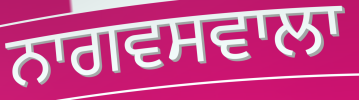
ਨਾਗਵਸਵਾਲਾ